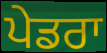
ਪੇਡਰਾ